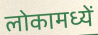
लोकामध्यें